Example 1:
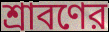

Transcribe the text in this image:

শ্রাবণের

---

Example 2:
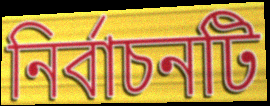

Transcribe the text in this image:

নির্বাচনটি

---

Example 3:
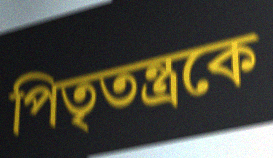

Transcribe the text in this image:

পিতৃতন্ত্রকে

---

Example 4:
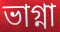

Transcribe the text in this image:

ভাগ্না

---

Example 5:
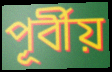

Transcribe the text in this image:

পূর্বীয়